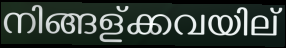
നിങ്ങള്ക്കവയില്